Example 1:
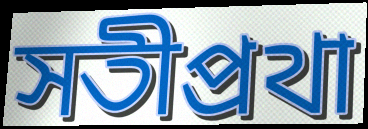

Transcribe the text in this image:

সতীপ্রথা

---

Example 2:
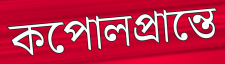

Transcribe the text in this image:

কপোলপ্রান্তে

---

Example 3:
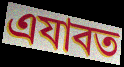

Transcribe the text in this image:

এযাবত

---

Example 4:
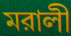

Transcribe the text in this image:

মরালী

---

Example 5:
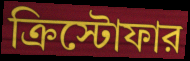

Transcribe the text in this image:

ক্রিস্টোফার